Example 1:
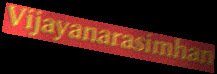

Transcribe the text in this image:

Vijayanarasimhan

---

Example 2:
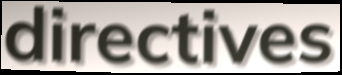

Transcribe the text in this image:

directives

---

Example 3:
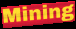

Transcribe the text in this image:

Mining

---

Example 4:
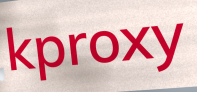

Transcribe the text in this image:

kproxy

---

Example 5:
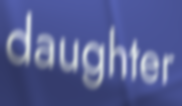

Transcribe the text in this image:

daughter